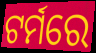
ଟର୍ମରେ